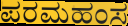
ಪರಮಹಂಸ